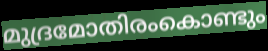
മുദ്രമോതിരംകൊണ്ടും